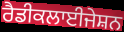
ਰੈਡੀਕਲਾਈਜੇਸ਼ਨ